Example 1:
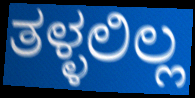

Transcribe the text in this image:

ತಳ್ಳಲಿಲ್ಲ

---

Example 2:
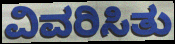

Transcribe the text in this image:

ವಿವರಿಸಿತು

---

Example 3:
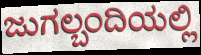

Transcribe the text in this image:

ಜುಗಲ್ಬಂದಿಯಲ್ಲಿ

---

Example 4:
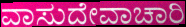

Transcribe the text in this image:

ವಾಸುದೇವಾಚಾರಿ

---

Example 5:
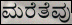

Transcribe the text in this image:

ಮರೆತೆವು